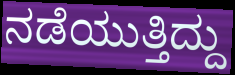
ನಡೆಯುತ್ತಿದ್ದು